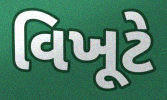
વિખૂટે